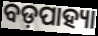
ବଡ଼ପାହ୍ୟା